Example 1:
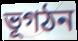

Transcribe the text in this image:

ভূগঠন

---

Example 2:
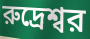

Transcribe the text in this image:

রুদ্রেশ্বর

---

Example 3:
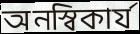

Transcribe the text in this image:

অনস্বিকার্য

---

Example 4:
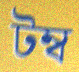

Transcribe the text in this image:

টম্ব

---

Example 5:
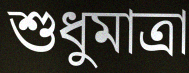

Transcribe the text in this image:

শুধুমাত্রা